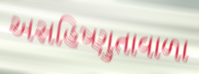
અસહિષ્ણુતાવાળા